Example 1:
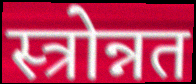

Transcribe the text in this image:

स्त्रोन्नत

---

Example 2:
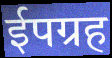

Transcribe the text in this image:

ईपग्रह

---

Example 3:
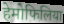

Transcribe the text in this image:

हेमोफिलिया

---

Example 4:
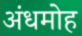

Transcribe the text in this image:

अंधमोह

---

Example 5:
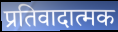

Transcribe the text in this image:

प्रतिवादात्मक